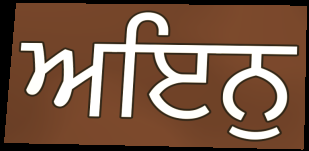
ਅਇਨੁ